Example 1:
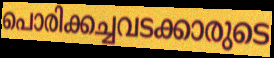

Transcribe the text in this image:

പൊരിക്കച്ചവടക്കാരുടെ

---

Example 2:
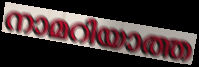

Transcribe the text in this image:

നാമറിയാത്ത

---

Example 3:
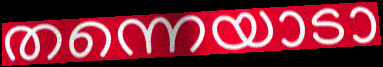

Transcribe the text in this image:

തന്നെയാടാ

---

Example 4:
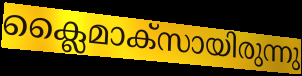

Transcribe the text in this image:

ക്ലൈമാക്സായിരുന്നു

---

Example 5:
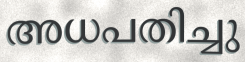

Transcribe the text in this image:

അധപതിച്ചു